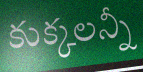
కుక్కలన్నీ